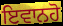
ਇਵਾਨਹੋ